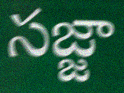
సజ్జా